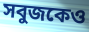
সবুজকেও